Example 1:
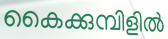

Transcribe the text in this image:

കൈക്കുമ്പിളിൽ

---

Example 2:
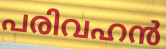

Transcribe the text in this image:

പരിവഹൻ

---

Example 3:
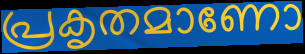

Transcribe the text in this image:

പ്രകൃതമാണോ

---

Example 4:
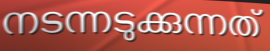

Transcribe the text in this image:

നടന്നടുക്കുന്നത്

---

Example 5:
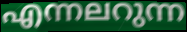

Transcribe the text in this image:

എന്നലറുന്ന